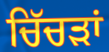
ਚਿੱਚੜਾਂ